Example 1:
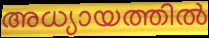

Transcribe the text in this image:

അധ്യായത്തിൽ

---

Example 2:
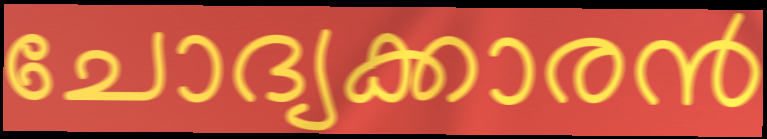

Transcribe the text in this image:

ചോദ്യക്കാരൻ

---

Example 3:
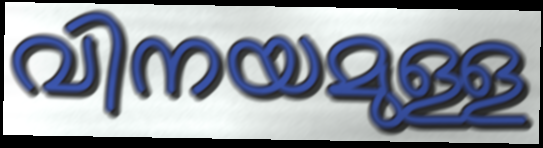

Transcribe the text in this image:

വിനയമുള്ള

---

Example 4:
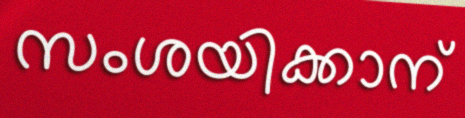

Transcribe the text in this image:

സംശയിക്കാന്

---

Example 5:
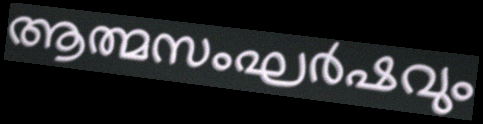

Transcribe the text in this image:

ആത്മസംഘർഷവും